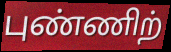
புண்ணிற்